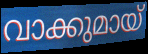
വാക്കുമായ്